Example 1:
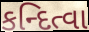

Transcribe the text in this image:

કન્દિત્વા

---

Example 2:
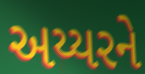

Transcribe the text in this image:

અય્યરને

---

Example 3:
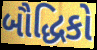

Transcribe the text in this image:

બૌદ્ધિકો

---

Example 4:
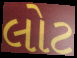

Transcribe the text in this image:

લોટ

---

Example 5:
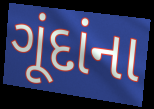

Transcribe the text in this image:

ગૂંદાંના